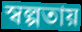
স্বল্পতায়